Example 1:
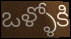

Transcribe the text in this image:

ఒళ్ళోకి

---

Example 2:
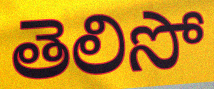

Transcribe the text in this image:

తెలిసో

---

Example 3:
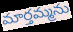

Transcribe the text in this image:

మార్తమ్మను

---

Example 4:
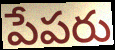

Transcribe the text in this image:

పేపరు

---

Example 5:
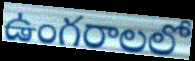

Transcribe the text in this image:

ఉంగరాలలో